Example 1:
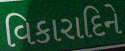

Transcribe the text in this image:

વિકારાદિને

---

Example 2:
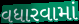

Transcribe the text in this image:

વધારવામાં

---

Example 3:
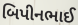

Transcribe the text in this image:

બિપીનભાઈ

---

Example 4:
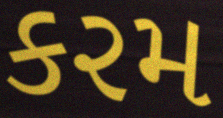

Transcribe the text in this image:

કરમ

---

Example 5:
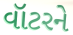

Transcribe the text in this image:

વૉટરને